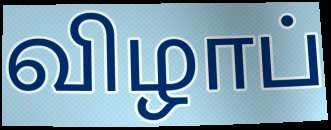
விழாப்